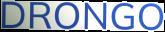
DRONGO